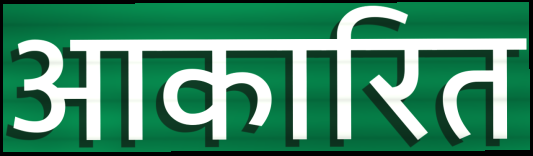
आकारित